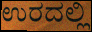
ಉರದಲ್ಲಿ